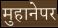
मुहानेपर